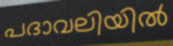
പദാവലിയിൽ